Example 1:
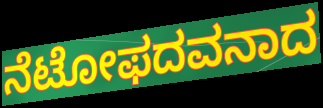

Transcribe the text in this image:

ನೆಟೋಫದವನಾದ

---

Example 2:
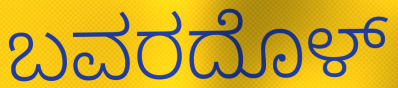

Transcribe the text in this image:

ಬವರದೊಳ್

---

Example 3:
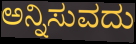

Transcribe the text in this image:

ಅನ್ನಿಸುವದು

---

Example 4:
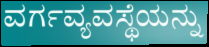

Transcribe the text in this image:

ವರ್ಗವ್ಯವಸ್ಥೆಯನ್ನು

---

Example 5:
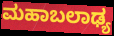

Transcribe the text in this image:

ಮಹಾಬಲಾಢ್ಯ